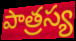
పాత్రస్య